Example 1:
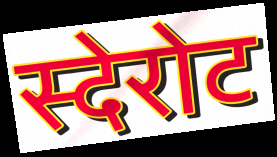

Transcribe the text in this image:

स्देरोट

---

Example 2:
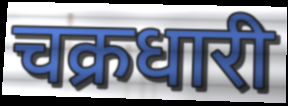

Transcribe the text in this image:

चक्रधारी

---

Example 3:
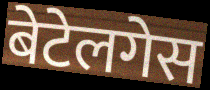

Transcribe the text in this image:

बेटेलगेस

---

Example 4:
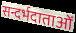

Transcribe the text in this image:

सन्दर्भदाताओं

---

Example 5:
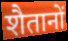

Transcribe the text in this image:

शैतानों